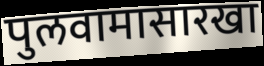
पुलवामासारखा